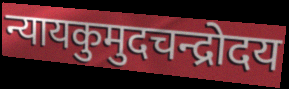
न्यायकुमुदचन्द्रोदय